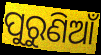
ପୁରୁଣିଆଁ